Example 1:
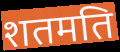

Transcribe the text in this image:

शतमति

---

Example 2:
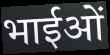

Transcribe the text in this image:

भाईओं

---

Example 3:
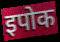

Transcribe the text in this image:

इपोक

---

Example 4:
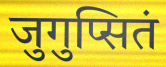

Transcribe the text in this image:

जुगुप्सितं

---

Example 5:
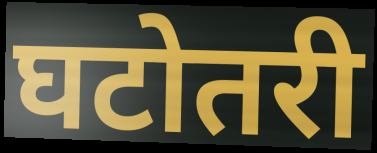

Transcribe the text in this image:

घटोतरी